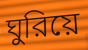
ঘুরিয়ে